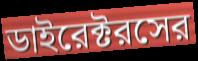
ডাইরেক্টরসের